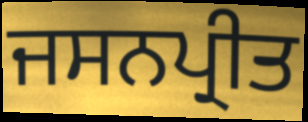
ਜਸਨਪ੍ਰੀਤ